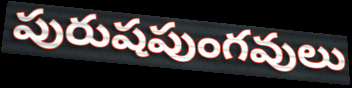
పురుషపుంగవులు